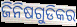
ଜିନିଷଗୁଡିକର